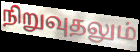
நிறுவுதலும்